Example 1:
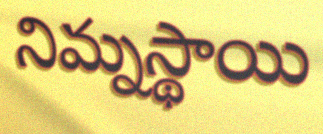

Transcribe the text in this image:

నిమ్నస్థాయి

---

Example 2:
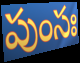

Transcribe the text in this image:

పుంసః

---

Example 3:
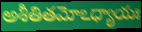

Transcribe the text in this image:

అశీతితమోఽధ్యాయః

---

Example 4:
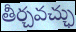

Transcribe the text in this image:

తీర్చవచ్ఛు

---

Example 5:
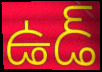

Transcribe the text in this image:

ఉడ్